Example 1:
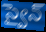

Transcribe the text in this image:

స్వైన్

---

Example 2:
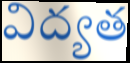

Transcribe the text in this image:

విద్యత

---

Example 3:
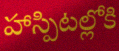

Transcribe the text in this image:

హాస్పిటల్లోకి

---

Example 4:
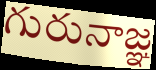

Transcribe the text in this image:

గురునాజ్ఞ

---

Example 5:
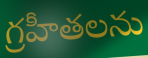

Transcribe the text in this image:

గ్రహీతలను